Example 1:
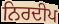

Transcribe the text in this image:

ਨਿਰਦੀਪ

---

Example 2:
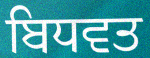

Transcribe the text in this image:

ਬਿਧਵਤ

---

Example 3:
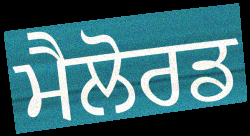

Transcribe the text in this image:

ਮੈਲੋਰਡ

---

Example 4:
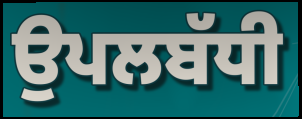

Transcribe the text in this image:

ਉਪਲਬੱਧੀ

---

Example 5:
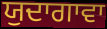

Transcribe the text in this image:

ਯੁਦਾਗਾਵਾ